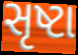
સૃષ્ટા